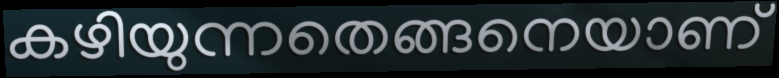
കഴിയുന്നതെങ്ങനെയാണ്